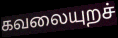
கவலையுறச்